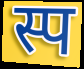
स्प